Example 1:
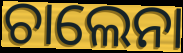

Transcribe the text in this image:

ଚାଲେନା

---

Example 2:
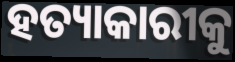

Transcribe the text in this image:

ହତ୍ୟାକାରୀକୁ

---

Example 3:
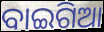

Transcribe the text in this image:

ବାଇଗିଆ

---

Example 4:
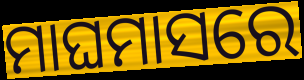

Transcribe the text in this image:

ମାଘମାସରେ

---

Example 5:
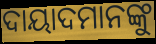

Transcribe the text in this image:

ଦାୟାଦମାନଙ୍କୁ